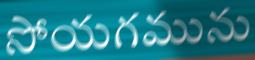
సోయగమును